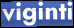
viginti